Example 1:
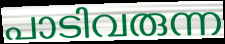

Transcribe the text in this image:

പാടിവരുന്ന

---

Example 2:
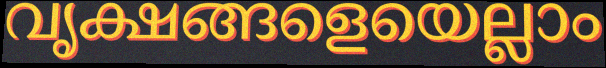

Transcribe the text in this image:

വൃക്ഷങ്ങളെയെല്ലാം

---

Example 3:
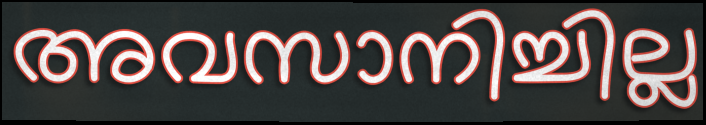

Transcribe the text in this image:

അവസാനിച്ചില്ല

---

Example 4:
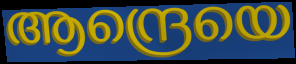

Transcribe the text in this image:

ആന്ദ്രെയെ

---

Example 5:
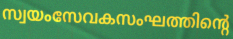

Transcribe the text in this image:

സ്വയംസേവകസംഘത്തിന്റെ